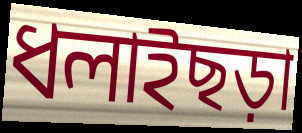
ধলাইছড়া